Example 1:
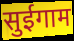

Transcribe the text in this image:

सुईगाम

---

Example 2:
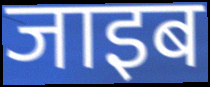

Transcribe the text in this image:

जाइब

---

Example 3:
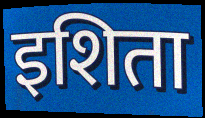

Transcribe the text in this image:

इशिता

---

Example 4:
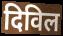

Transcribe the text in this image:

दिविल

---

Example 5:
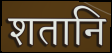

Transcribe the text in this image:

शतानि